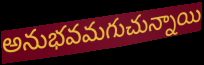
అనుభవమగుచున్నాయి